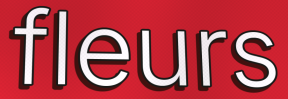
fleurs